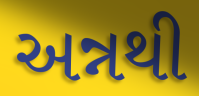
અન્નથી